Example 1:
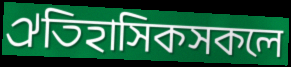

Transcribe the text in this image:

ঐতিহাসিকসকলে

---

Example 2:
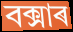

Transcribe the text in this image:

বক্সাৰ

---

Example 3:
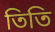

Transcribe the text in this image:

তিতি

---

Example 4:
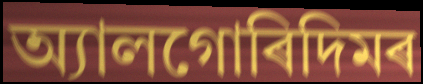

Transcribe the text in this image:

অ্যালগোৰিদিমৰ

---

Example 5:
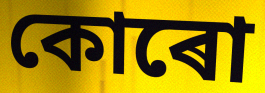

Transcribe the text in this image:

কোৰো